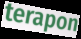
terapon